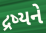
દ્રષ્યને